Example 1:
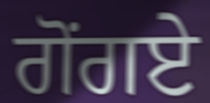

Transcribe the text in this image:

ਗੋਂਗਏ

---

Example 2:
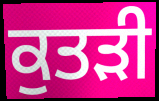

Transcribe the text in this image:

ਕੁਤੜੀ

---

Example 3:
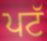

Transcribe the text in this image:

ਪਟੱ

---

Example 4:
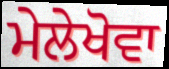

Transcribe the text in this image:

ਮੇਲੇਖੋਵਾ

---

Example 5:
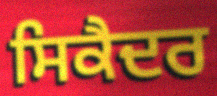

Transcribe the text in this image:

ਸਿਕੈਦਰ